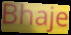
Bhaje